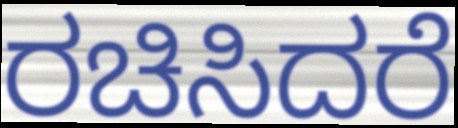
ರಚಿಸಿದರೆ